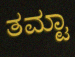
ತಮ್ಟಾ